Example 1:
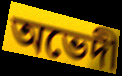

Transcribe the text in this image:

অভেদী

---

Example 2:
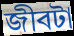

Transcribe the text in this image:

জীবটা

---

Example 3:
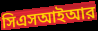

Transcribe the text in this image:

সিএসআইআর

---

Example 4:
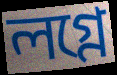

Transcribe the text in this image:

লগ্নে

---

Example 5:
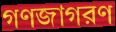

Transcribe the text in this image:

গণজাগরণ